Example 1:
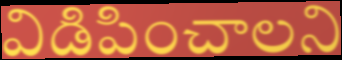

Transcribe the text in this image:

విడిపించాలని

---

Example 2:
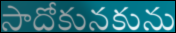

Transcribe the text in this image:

సాదోకునకును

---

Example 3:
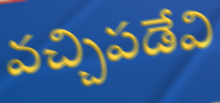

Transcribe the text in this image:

వచ్చిపడేవి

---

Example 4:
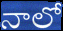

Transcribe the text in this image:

నాలో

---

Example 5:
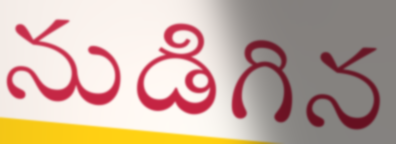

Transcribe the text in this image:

నుడిగిన